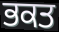
ਭਕਤ